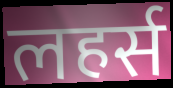
लहर्स